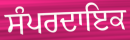
ਸੰਪਰਦਾਇਕ